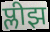
प्लीझ